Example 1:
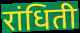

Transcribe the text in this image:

रांधिती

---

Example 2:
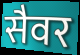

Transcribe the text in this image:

सैवर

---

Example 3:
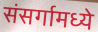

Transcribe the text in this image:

संसर्गामध्ये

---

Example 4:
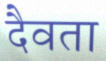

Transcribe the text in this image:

दैवता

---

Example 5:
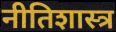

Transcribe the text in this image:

नीतिशास्त्र